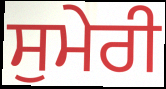
ਸੁਮੇਰੀ